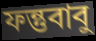
ফন্তুবাবু